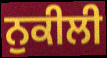
ਨੁਕੀਲੀ